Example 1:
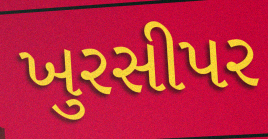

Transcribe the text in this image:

ખુરસીપર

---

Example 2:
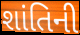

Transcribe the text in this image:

શાંતિની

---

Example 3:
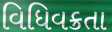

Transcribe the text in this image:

વિધિવક્રતા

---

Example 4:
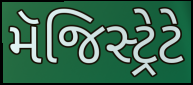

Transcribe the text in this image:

મૅજિસ્ટ્રેટે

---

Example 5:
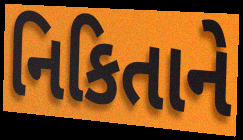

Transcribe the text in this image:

નિકિતાને